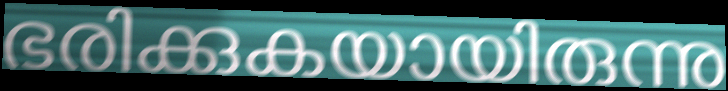
ഭരിക്കുകയായിരുന്നു